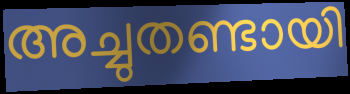
അച്ചുതണ്ടായി